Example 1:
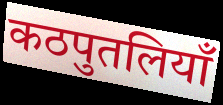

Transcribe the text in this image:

कठपुतलियाँ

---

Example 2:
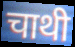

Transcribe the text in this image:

चाथी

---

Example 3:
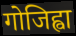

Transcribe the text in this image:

गोजिह्वा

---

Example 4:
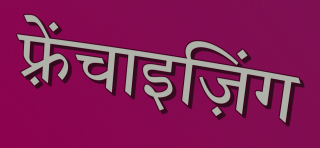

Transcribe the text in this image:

फ़्रेंचाइज़िंग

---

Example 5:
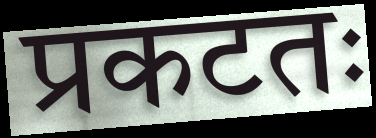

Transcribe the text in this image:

प्रकटतः